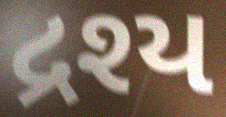
દ્રશ્ય